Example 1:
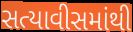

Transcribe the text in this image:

સત્યાવીસમાંથી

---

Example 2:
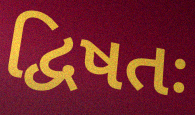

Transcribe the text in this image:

દ્વિષતઃ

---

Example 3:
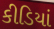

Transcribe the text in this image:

કીડિયાં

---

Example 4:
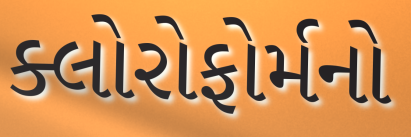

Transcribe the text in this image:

ક્લોરોફોર્મનો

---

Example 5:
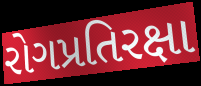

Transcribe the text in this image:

રોગપ્રતિરક્ષા